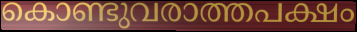
കൊണ്ടുവരാത്തപക്ഷം